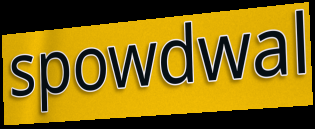
spowdwal